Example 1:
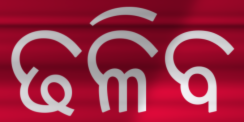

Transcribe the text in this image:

ଢଳିବ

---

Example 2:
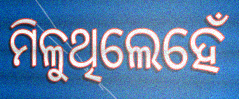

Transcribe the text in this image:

ମିଳୁଥିଲେହେଁ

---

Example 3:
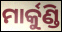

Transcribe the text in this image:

ମାର୍କୁଣ୍ଡି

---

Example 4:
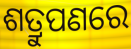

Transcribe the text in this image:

ଶତ୍ରୁପଣରେ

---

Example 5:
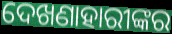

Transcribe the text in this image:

ଦେଖଣାହାରୀଙ୍କର